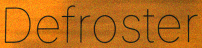
Defroster